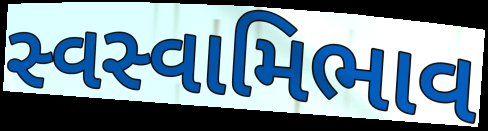
સ્વસ્વામિભાવ